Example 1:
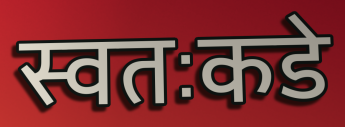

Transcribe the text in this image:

स्वतःकडे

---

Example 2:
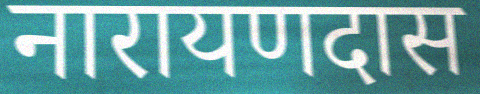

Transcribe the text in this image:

नारायणदास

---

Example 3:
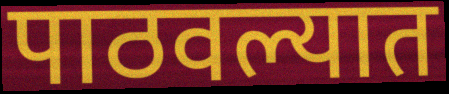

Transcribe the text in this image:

पाठवल्यात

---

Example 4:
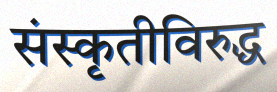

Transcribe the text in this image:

संस्कृतीविरुद्ध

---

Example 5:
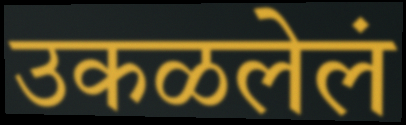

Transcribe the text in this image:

उकळलेलं